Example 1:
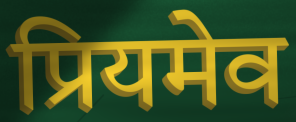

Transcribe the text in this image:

प्रियमेव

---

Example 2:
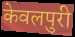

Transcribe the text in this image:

केवलपुरी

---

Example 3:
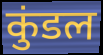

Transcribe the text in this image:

कुंडल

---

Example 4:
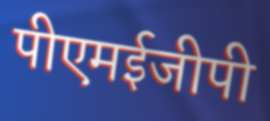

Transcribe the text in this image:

पीएमईजीपी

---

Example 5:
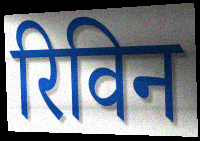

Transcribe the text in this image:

रिविन